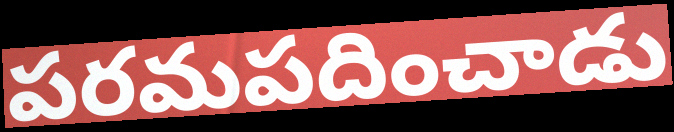
పరమపదించాడు